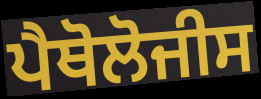
ਪੈਥੋਲੋਜੀਸ